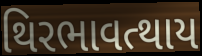
થિરભાવત્થાય